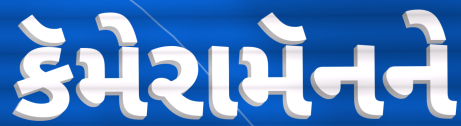
કૅમેરામૅનને